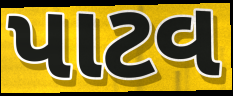
પાટવ